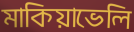
মাকিয়াভেলি